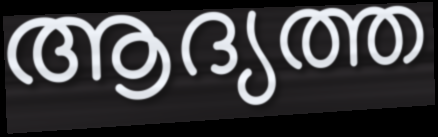
ആദ്യത്ത